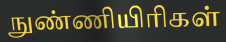
நுண்ணியிரிகள்